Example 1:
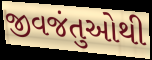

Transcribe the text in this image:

જીવજંતુઓથી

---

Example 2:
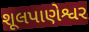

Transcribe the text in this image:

શૂલપાણેશ્વર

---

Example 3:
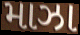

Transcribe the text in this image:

માઝા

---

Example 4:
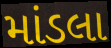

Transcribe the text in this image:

માંડલા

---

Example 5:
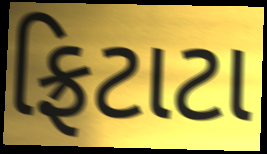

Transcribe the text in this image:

ફ્રિટાટા